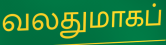
வலதுமாகப்